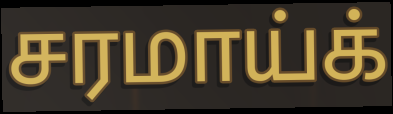
சரமாய்க்